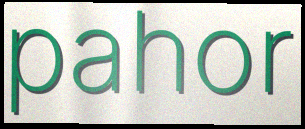
pahor